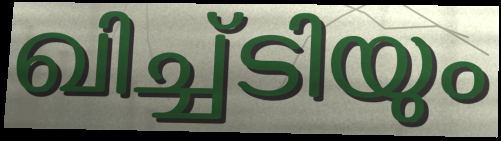
ഖിച്ച്ടിയും